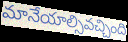
మానేయాల్సివచ్చింది